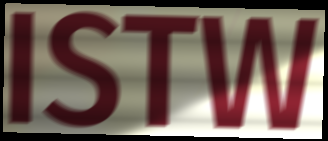
ISTW